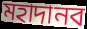
মহাদানব